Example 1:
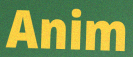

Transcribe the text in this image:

Anim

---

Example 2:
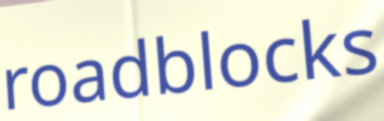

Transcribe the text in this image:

roadblocks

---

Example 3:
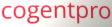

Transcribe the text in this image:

cogentpro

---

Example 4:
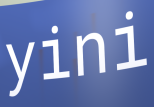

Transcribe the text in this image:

yini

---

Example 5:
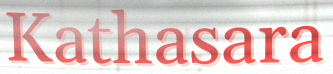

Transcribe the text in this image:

Kathasara